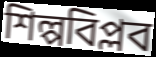
শিল্পবিপ্লব